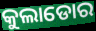
କୁଲାଡୋର